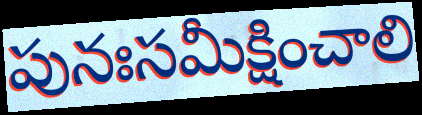
పునఃసమీక్షించాలి